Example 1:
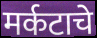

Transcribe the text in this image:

मर्कटाचे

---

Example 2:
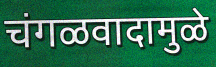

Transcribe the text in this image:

चंगळवादामुळे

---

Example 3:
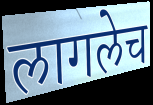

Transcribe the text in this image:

लागलेच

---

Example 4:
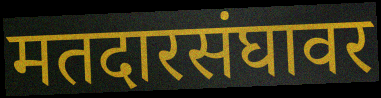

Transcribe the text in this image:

मतदारसंघावर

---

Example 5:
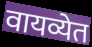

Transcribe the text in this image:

वायव्येत